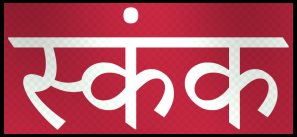
स्कंक